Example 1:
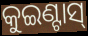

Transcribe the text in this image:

କୁଇଣ୍ଟାସ୍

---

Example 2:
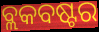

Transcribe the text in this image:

ବ୍ଲକବଷ୍ଟର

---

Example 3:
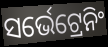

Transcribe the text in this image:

ସର୍ଭେଟ୍ରେନିଂ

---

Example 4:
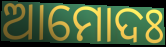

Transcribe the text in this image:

ଆମୋଦଃ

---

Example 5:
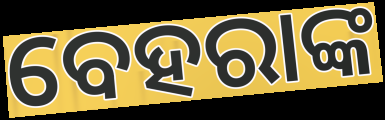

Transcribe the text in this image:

ବେହରାଙ୍କ